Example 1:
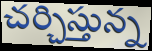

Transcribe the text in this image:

చర్చిస్తున్న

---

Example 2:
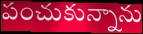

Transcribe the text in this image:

పంచుకున్నాను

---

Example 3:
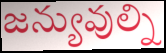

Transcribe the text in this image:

జన్యువుల్ని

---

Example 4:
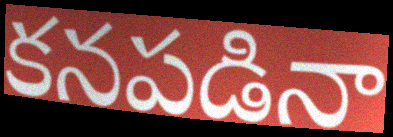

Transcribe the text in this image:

కనపడినా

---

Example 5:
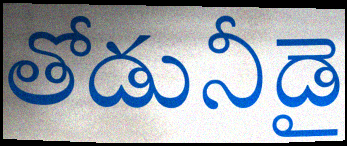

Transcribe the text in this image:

తోడునీడై